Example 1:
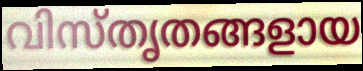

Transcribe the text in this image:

വിസ്തൃതങ്ങളായ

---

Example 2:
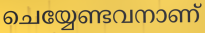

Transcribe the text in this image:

ചെയ്യേണ്ടവനാണ്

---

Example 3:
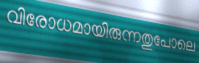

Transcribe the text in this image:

വിരോധമായിരുന്നതുപോലെ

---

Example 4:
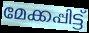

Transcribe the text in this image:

മേക്കപ്പിട്ട്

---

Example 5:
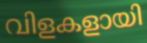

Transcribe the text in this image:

വിളകളായി